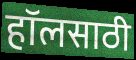
हॉलसाठी